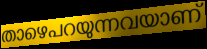
താഴെപറയുന്നവയാണ്